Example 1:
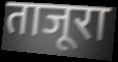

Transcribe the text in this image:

ताजूरा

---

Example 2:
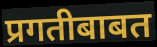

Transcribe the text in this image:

प्रगतीबाबत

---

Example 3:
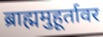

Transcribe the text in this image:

ब्राह्ममुहूर्तावर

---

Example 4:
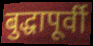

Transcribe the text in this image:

बुद्धापूर्वी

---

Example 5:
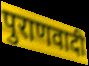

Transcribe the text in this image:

पुराणवादी